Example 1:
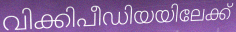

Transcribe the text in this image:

വിക്കിപീഡിയയിലേക്ക്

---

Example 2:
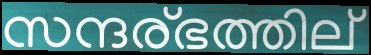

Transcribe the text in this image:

സന്ദര്ഭത്തില്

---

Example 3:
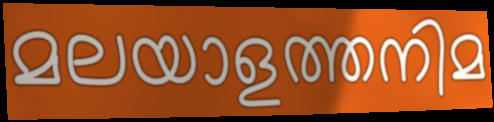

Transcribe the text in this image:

മലയാളത്തനിമ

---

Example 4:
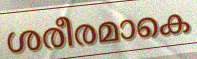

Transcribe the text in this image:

ശരീരമാകെ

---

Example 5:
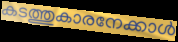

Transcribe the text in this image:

കടത്തുകാരനേക്കാൾ